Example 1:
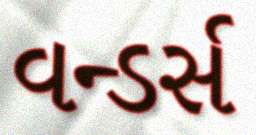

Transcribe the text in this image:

વન્ડર્સ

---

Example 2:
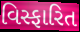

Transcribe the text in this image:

વિસ્ફારિત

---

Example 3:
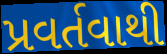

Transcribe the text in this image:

પ્રવર્તવાથી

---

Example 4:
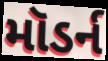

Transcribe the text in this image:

મૉડર્ન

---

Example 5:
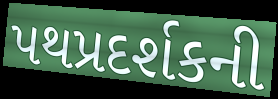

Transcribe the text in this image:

પથપ્રદર્શકની